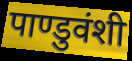
पाण्डुवंशी